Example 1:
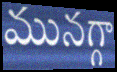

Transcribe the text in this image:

మునగ్గా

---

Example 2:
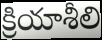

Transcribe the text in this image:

క్రియాశీలి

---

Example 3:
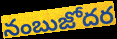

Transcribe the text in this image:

నంబుజోదర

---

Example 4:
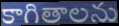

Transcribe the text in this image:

కాగితాలను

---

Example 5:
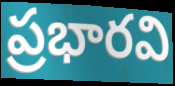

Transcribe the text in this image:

ప్రభారవి